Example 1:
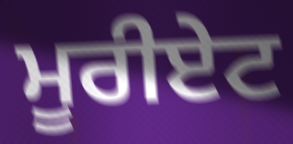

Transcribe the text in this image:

ਮੂਰੀਏਟ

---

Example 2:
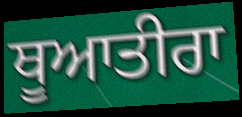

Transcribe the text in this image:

ਥੂਆਤੀਰਾ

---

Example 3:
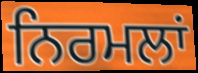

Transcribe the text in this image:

ਨਿਰਮਲਾਂ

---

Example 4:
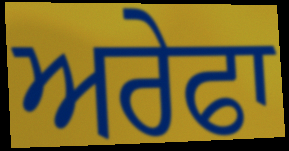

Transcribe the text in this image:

ਅਰੇਫਾ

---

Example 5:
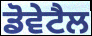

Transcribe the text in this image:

ਡੋਵੇਟੈਲ